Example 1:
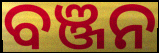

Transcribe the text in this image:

ବଞ୍ଜନ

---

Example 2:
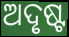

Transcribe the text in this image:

ଅଦୃଷ୍ଟ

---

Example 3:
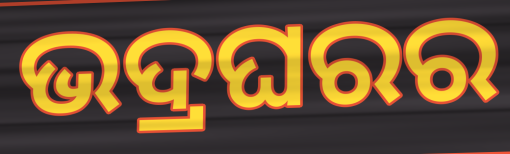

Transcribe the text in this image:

ଭଦ୍ରଘରର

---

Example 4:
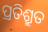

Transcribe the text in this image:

ପ୍ରତିଶ୍ରୁତ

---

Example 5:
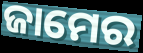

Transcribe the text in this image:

ଜାମେର